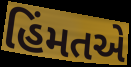
હિંમતએ